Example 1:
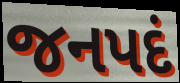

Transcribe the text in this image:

જનપદં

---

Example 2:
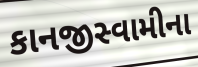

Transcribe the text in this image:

કાનજીસ્વામીના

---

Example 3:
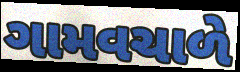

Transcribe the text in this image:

ગામવચાળે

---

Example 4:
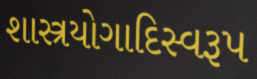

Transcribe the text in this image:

શાસ્ત્રયોગાદિસ્વરૂપ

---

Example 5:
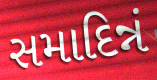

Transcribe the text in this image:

સમાદિન્નં